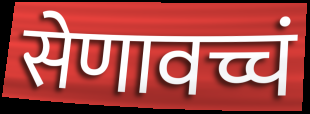
सेणावच्चं